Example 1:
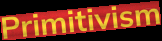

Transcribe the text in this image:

Primitivism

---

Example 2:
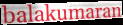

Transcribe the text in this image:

balakumaran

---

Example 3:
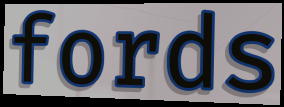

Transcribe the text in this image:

fords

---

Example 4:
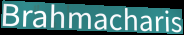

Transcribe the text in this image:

Brahmacharis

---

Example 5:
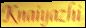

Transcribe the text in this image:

Knaiyazhi